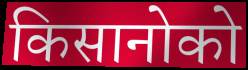
किसानोको